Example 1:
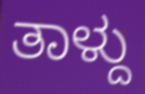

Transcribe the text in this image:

ತಾಳ್ದು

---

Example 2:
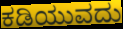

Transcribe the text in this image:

ಕಡಿಯುವದು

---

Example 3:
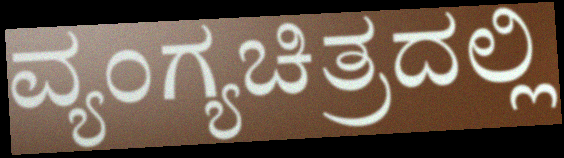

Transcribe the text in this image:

ವ್ಯಂಗ್ಯಚಿತ್ರದಲ್ಲಿ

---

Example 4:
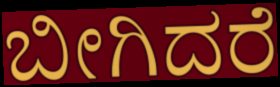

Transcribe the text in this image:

ಬೀಗಿದರೆ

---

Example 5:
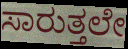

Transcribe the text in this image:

ಸಾರುತ್ತಲೇ